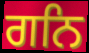
ਗਨਿ